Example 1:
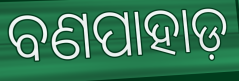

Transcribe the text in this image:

ବଣପାହାଡ଼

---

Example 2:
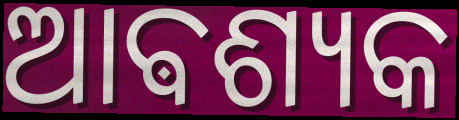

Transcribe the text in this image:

ଆଵଶ୍ୟକ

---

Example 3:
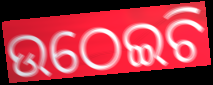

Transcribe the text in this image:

ଉଠେଇଚି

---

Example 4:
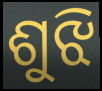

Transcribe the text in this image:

ଶୁଝି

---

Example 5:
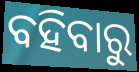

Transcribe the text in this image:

ବହିବାରୁ